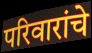
परिवारांचे